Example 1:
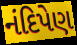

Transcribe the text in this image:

નંદિપેણ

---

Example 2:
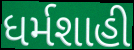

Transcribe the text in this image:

ધર્મશાહી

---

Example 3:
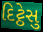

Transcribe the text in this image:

દિટ્ઠેસુ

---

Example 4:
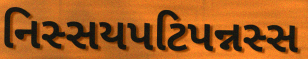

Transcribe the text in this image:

નિસ્સયપટિપન્નસ્સ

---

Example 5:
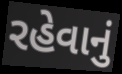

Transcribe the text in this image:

રહેવાનું